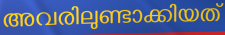
അവരിലുണ്ടാക്കിയത്